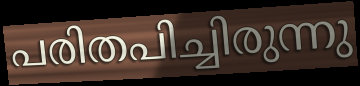
പരിതപിച്ചിരുന്നു